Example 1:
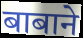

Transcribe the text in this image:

बाबाने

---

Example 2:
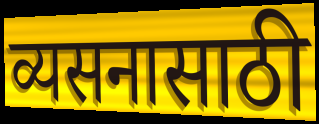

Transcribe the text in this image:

व्यसनासाठी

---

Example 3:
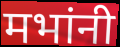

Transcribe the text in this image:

मभांनी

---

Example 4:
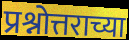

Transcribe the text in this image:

प्रश्नोत्तराच्या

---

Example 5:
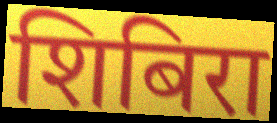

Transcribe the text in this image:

शिबिरा